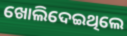
ଖୋଲିଦେଇଥିଲେ